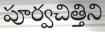
పూర్వచిత్తిని